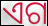
ଏଗ